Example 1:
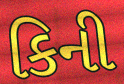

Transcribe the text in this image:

કિની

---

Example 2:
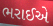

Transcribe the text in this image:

ભરાઈએ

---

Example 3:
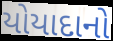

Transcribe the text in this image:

યોયાદાનો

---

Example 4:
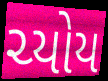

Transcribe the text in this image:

ચ્યોય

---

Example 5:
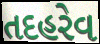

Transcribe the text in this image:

તદહરેવ